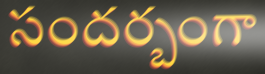
సందర్బంగా